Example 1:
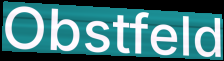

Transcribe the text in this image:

Obstfeld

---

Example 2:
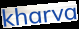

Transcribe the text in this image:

kharva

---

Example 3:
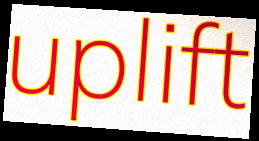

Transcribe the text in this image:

uplift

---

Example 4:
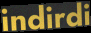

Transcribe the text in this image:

indirdi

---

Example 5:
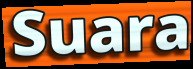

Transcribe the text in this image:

Suara